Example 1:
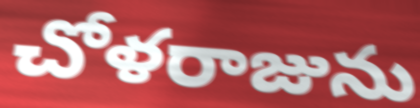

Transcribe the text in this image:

చోళరాజును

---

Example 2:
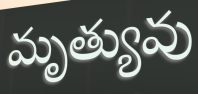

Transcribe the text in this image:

మృత్యువు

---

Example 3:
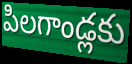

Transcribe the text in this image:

పిలగాండ్లకు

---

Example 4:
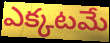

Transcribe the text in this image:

ఎక్కటమే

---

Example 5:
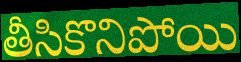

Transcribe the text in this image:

తీసికొనిపోయి